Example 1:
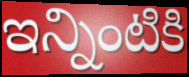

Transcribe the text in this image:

ఇన్నింటికి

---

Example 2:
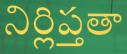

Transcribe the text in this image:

నిర్లిప్తతా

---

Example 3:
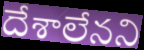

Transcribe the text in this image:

దేశాలేనని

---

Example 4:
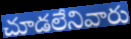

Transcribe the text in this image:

చూడలేనివారు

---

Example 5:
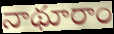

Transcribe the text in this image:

నాథూరాం